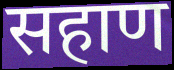
सहाण